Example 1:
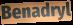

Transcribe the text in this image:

Benadryl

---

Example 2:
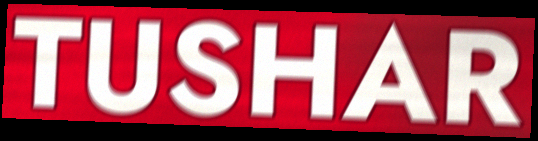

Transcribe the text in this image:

TUSHAR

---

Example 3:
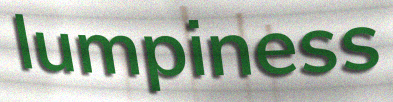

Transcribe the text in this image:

lumpiness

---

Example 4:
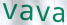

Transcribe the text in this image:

vava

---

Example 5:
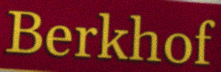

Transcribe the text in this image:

Berkhof